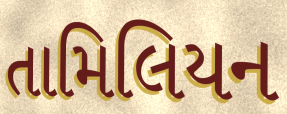
તામિલિયન